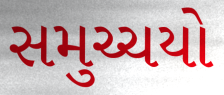
સમુચ્ચયો